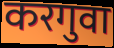
करगुवा